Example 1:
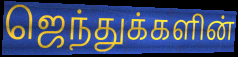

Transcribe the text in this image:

ஜெந்துக்களின்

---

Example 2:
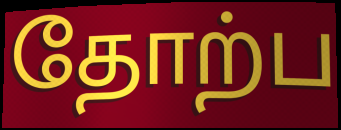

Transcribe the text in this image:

தோற்ப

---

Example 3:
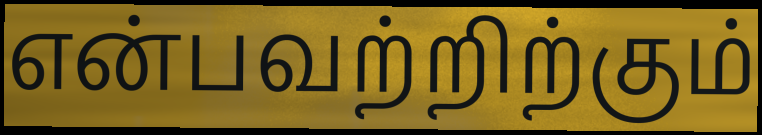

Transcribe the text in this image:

என்பவற்றிற்கும்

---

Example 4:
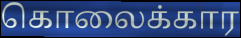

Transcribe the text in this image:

கொலைக்கார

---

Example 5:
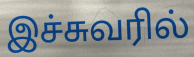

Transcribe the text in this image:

இச்சுவரில்